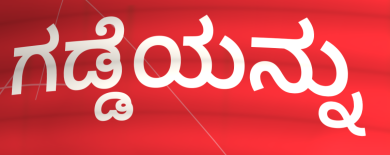
ಗಡ್ಡೆಯನ್ನು